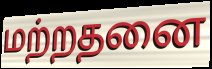
மற்றதனை